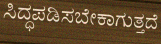
ಸಿದ್ಧಪಡಿಸಬೇಕಾಗುತ್ತದೆ